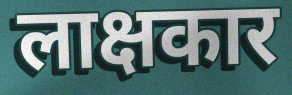
लाक्षकार